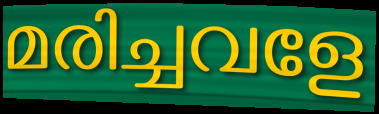
മരിച്ചവളേ